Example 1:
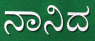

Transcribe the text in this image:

ನಾನಿದ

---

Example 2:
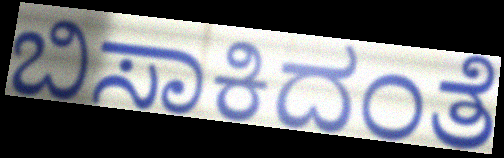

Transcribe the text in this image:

ಬಿಸಾಕಿದಂತೆ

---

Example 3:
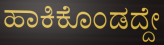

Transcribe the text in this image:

ಹಾಕಿಕೊಂಡದ್ದೇ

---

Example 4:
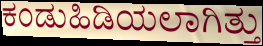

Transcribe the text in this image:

ಕಂಡುಹಿಡಿಯಲಾಗಿತ್ತು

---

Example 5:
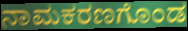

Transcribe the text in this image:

ನಾಮಕರಣಗೊಂಡ